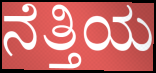
ನೆತ್ತಿಯ